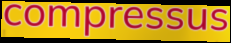
compressus